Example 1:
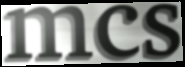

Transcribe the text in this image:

mcs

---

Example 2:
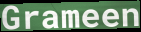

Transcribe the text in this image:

Grameen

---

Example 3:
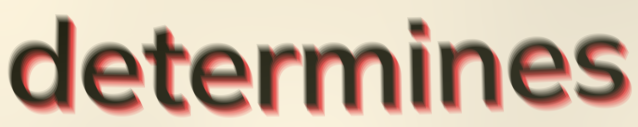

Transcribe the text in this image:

determines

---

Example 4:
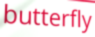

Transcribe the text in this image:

butterfly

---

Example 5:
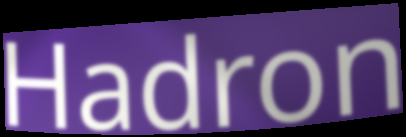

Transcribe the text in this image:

Hadron